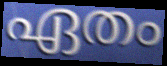
ഏതം